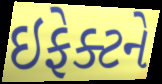
ઇફેક્ટને